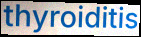
thyroiditis